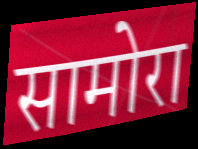
सामोरा